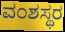
ವಂಶಸ್ಥರ